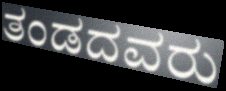
ತಂಡದವರು